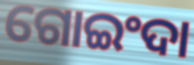
ଗୋଇଂଦା